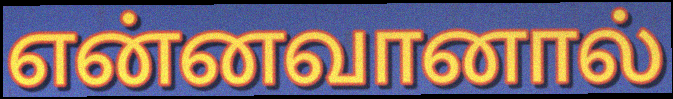
என்னவானால்